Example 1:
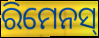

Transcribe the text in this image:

ରିମେନସ୍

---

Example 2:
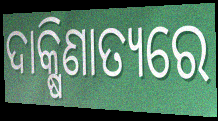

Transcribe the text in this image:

ଦାକ୍ଷିଣାତ୍ୟରେ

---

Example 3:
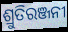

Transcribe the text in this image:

ଶ୍ରୁତିରଞ୍ଜନୀ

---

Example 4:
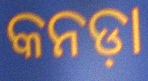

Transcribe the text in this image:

କନଡ଼ା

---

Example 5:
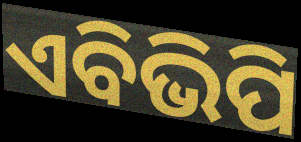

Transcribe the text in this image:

ଏବିଭିପି